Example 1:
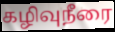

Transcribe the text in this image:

கழிவுநீரை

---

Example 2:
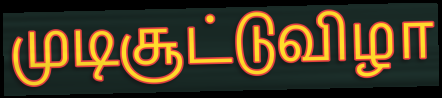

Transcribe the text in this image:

முடிசூட்டுவிழா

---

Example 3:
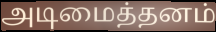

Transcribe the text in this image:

அடிமைத்தனம்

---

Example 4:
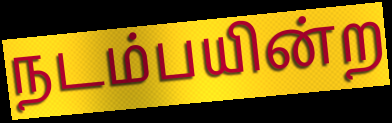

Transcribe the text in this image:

நடம்பயின்ற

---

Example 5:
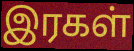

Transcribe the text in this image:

இரகள்